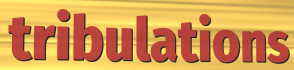
tribulations